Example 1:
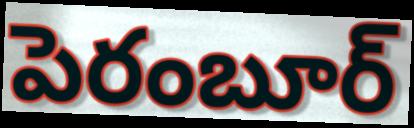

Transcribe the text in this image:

పెరంబూర్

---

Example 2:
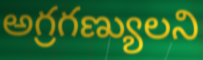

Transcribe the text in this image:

అగ్రగణ్యులని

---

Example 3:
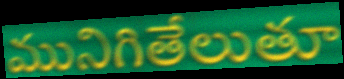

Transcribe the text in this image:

మునిగితేలుతూ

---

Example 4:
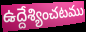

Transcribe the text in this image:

ఉద్దేశ్యించటము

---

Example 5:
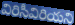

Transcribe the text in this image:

విరిసీవిరియని